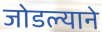
जोडल्याने